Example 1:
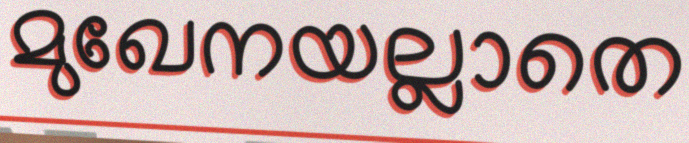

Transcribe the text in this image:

മുഖേനയല്ലാതെ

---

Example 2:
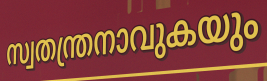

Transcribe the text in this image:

സ്വതന്ത്രനാവുകയും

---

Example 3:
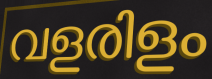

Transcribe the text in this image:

വളരിളം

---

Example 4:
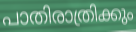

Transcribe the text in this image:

പാതിരാത്രിക്കും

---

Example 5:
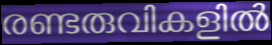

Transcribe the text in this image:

രണ്ടരുവികളിൽ